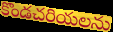
కొండచరియలను